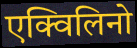
एक्विलिनो